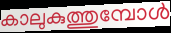
കാലുകുത്തുമ്പോൾ